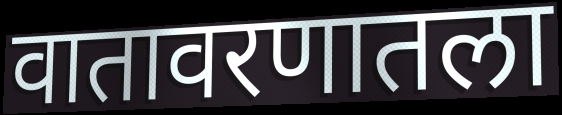
वातावरणातला